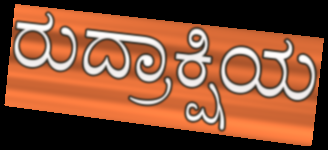
ರುದ್ರಾಕ್ಷಿಯ